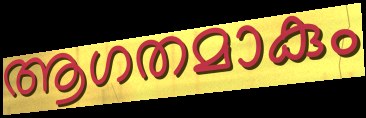
ആഗതമാകും